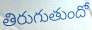
తిరుగుతుందో